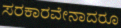
ಸರಕಾರವೇನಾದರೂ